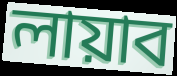
লায়াব